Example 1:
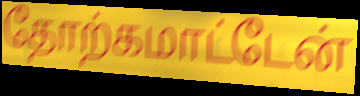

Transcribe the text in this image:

தோற்கமாட்டேன்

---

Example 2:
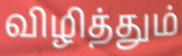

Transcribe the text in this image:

விழித்தும்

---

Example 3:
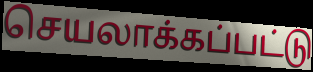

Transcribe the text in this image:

செயலாக்கப்பட்டு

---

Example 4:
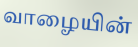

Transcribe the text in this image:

வாழையின்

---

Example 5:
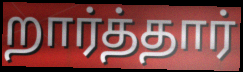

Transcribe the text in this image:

றார்த்தார்